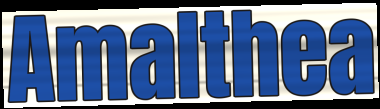
Amalthea